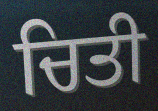
ਚਿਤੀ